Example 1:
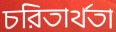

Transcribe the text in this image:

চরিতার্থতা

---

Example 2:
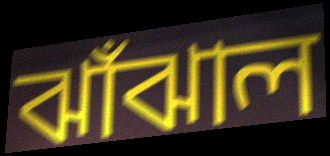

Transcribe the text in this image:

ঝাঁঝাল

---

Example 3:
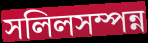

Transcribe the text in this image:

সলিলসম্পন্ন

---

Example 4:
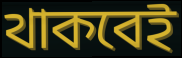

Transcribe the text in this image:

থাকবেই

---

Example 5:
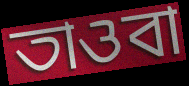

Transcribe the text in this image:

তাওবা